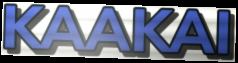
KAAKAI